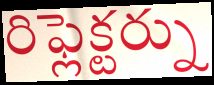
రిఫ్లెక్టర్ను